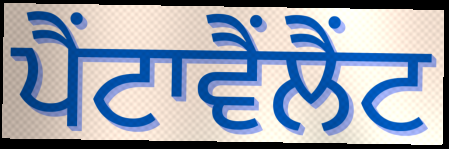
ਪੈਂਟਾਵੈਂਲੈਂਟ